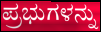
ಪ್ರಭುಗಳನ್ನು